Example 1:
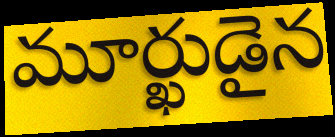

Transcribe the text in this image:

మూర్ఖుడైన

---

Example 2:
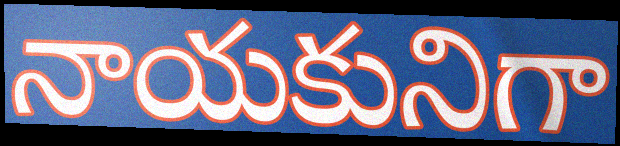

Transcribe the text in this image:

నాయకునిగా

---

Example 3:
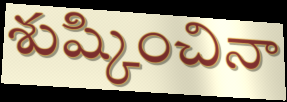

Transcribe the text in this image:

శుష్కించినా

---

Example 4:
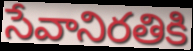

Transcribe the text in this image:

సేవానిరతికి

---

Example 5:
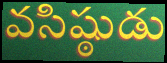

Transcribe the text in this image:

వసిష్ఠుడు